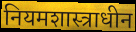
नियमशास्त्राधीन